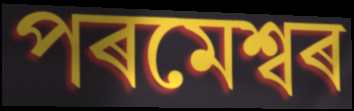
পৰমেশ্বৰ